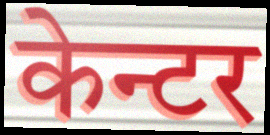
केन्टर